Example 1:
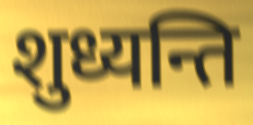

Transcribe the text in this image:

शुध्यन्ति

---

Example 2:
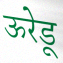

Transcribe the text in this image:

ऊरेडू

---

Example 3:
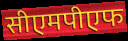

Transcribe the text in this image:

सीएमपीएफ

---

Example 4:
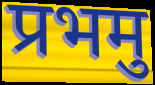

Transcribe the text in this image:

प्रभमु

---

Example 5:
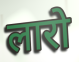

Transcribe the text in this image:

लारो